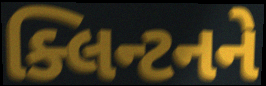
ક્લિન્ટનને